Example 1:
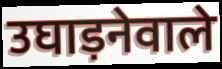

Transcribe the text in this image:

उघाड़नेवाले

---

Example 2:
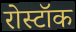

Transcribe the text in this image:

रोस्टॉक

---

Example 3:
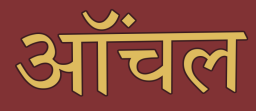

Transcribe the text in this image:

ऑंचल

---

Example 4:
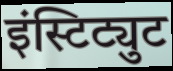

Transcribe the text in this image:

इंस्टिट्युट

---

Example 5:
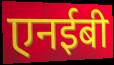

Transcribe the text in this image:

एनईबी